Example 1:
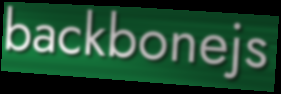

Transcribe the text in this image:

backbonejs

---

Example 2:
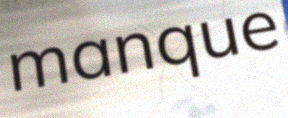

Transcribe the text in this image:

manque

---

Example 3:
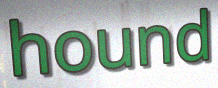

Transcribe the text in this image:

hound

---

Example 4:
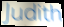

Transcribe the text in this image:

Judith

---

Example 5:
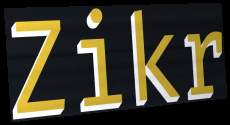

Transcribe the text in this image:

Zikr